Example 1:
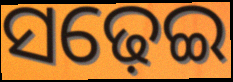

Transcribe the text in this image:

ସଢ଼େଇ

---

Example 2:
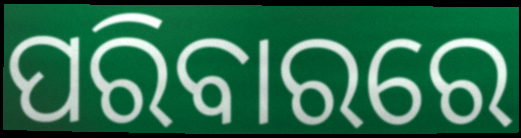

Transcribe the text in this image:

ପରିବାରରେ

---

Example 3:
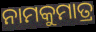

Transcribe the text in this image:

ନାମକୁମାତ୍ର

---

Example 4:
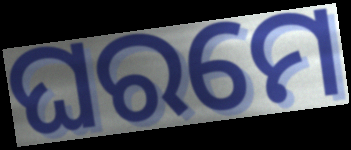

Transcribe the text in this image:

ଘରମେ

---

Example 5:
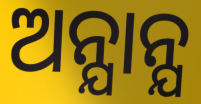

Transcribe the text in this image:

ଅନ୍ଯାନ୍ଯ